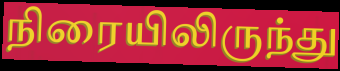
நிரையிலிருந்து